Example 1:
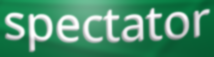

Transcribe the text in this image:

spectator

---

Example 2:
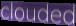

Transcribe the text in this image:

clouded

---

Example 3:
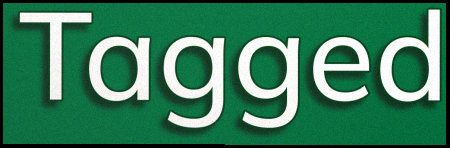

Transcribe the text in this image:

Tagged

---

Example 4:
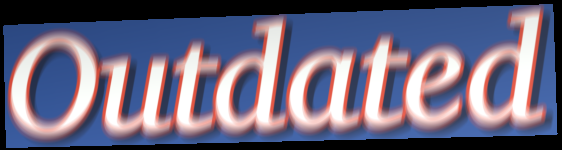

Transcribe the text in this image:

Outdated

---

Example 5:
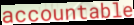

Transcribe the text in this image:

accountable